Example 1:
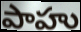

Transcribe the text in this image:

పాహు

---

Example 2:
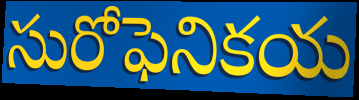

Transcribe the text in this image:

సురోఫెనికయ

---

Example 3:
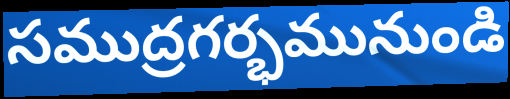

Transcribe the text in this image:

సముద్రగర్భమునుండి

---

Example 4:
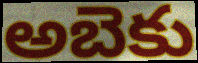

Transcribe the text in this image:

అబెకు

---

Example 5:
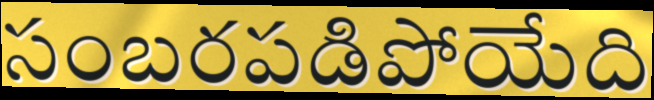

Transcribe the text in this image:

సంబరపడిపోయేది